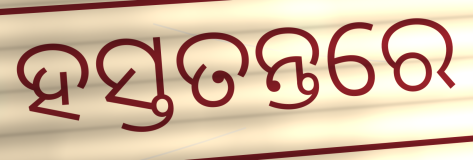
ହସ୍ତତନ୍ତରେ